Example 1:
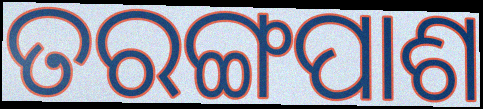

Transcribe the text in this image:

ତରଙ୍ଗପାଶ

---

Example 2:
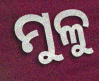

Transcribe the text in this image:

ମୁଳୁ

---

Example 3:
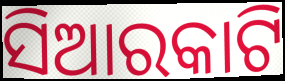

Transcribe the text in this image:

ସିଆରକାଟି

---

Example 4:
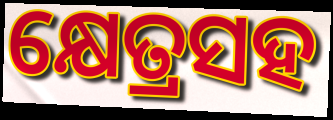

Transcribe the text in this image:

କ୍ଷେତ୍ରସହ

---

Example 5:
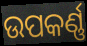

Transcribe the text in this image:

ଉପକର୍ଣ୍ଣ